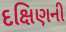
દક્ષિણની